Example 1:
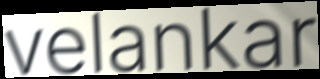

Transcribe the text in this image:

velankar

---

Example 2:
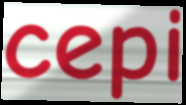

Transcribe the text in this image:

cepi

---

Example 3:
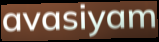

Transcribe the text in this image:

avasiyam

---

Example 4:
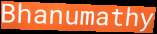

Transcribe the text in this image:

Bhanumathy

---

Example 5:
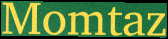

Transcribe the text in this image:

Momtaz